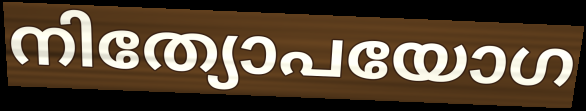
നിത്യോപയോഗ